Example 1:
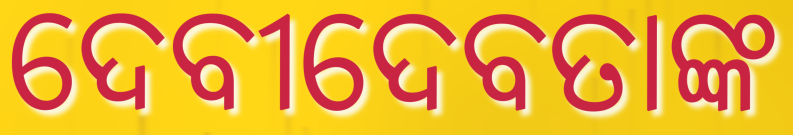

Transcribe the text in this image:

ଦେବୀଦେବତାଙ୍କ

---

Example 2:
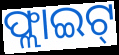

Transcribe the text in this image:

ଫ୍ଲାଇଟ୍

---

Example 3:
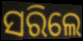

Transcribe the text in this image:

ସରିଲେ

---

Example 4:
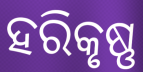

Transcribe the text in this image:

ହରିକୃଷ୍ଣ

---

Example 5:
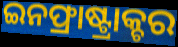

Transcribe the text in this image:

ଇନଫ୍ରାଷ୍ଟ୍ରାକ୍ଚର